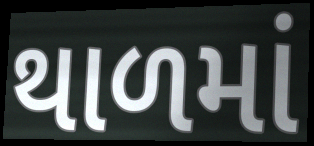
થાળમાં